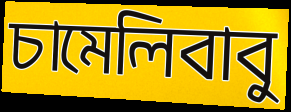
চামেলিবাবু